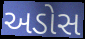
અડોસ